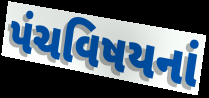
પંચવિષયનાં